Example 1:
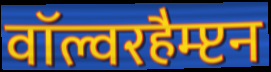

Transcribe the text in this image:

वॉल्वरहैम्प्टन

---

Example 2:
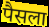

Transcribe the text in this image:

पैसला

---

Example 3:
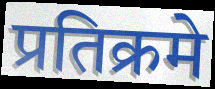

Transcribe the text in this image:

प्रतिक्रमे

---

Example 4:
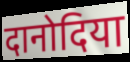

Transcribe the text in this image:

दानोदिया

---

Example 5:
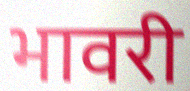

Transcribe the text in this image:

भावरी